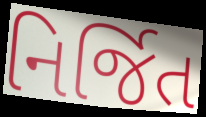
નિર્જિત